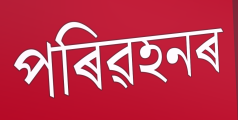
পৰিৱহনৰ